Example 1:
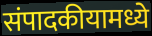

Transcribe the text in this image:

संपादकीयामध्ये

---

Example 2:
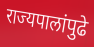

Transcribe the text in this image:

राज्यपालांपुढे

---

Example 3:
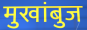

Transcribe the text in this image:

मुखांबुज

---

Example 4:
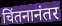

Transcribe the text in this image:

चिंतनानंतर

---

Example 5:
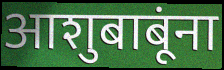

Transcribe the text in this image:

आशुबाबूंना